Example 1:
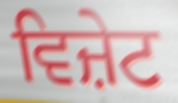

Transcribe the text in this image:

ਵਿਜ਼ੇਟ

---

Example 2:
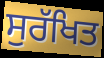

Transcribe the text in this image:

ਸੁਰੱਖਿਤ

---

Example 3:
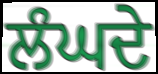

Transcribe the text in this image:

ਲੰਘਦੇ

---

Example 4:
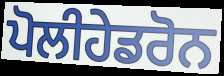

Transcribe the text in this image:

ਪੋਲੀਹੇਡਰੋਨ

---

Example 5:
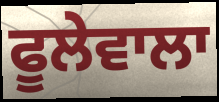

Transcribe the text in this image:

ਫੂਲੇਵਾਲਾ